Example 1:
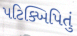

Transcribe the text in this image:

પટિક્ખિપિતું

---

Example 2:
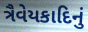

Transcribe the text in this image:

ત્રૈવેયકાદિનું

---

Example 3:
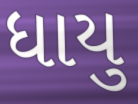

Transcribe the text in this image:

ધાયુ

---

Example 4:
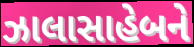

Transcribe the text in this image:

ઝાલાસાહેબને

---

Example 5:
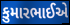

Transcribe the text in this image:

કુમારભાઈએ